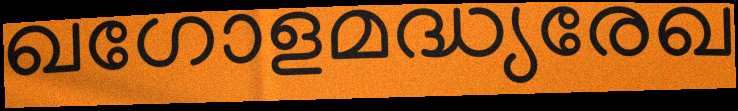
ഖഗോളമദ്ധ്യരേഖ